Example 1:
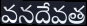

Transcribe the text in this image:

వనదేవత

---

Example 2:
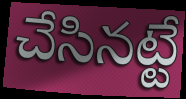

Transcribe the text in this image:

చేసినట్టే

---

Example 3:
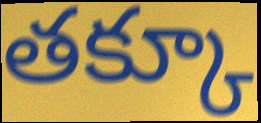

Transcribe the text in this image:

తక్కూ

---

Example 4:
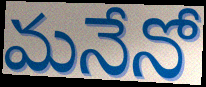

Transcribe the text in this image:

మనేనో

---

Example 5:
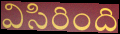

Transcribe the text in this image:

విసిరింది